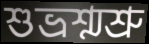
শুভ্রশ্মশ্রু